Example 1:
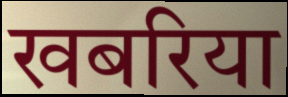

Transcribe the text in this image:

खबरिया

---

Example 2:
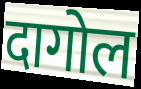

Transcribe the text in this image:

दागोल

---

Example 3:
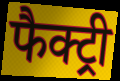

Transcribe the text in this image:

फैक्ट्री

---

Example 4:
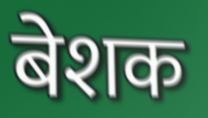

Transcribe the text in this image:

बेशक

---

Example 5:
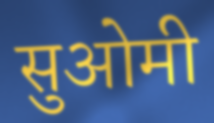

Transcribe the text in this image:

सुओमी